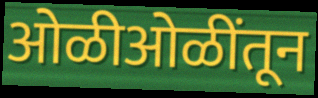
ओळीओळींतून